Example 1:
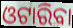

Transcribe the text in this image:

ଓଟାରିବା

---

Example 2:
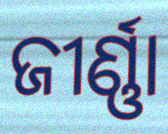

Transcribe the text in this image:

ଜୀର୍ଣ୍ଣା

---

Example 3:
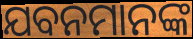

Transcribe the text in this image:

ଯବନମାନଙ୍କ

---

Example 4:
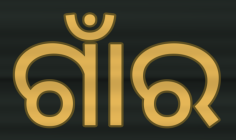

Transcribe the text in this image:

ଗାଁର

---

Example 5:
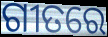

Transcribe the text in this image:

ଗୀତରେ